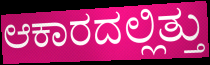
ಆಕಾರದಲ್ಲಿತ್ತು